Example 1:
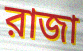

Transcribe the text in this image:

রাজা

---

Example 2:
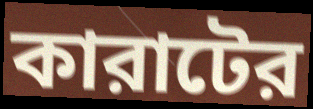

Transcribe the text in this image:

কারাটের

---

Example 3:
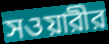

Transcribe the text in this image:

সওয়ারীর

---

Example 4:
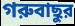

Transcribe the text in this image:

গরুবাছুর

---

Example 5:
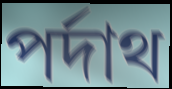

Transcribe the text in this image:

পর্দাথ